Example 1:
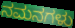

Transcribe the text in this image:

ನಮನಗಳು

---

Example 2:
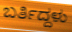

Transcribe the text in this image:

ಬರ್ತಿದ್ದಳು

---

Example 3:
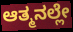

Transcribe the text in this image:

ಆತ್ಮನಲ್ಲೇ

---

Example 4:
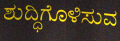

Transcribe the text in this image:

ಶುದ್ಧಿಗೊಳಿಸುವ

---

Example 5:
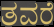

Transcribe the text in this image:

ತವರೆ